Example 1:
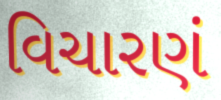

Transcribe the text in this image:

વિચારણં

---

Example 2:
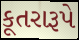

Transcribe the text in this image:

કૂતરારૂપે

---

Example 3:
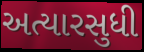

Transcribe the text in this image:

અત્યારસુધી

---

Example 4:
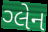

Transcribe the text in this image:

ગ્લેન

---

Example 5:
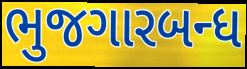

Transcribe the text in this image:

ભુજગારબન્ધ